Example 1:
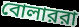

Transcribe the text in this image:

বোলাররা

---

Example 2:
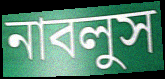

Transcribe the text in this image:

নাবলুস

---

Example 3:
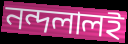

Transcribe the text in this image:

নন্দলালই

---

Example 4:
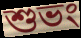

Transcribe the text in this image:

শুভং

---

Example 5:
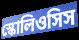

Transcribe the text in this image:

স্কোলিওসিস